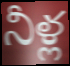
నీళ్ల